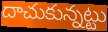
దాచుకున్నట్టు